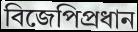
বিজেপিপ্রধান